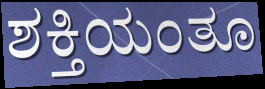
ಶಕ್ತಿಯಂತೂ